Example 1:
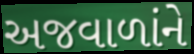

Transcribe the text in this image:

અજવાળાંને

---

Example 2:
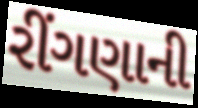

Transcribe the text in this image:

રીંગણાની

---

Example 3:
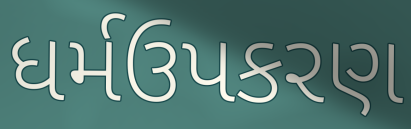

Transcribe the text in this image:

ધર્મઉપકરણ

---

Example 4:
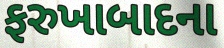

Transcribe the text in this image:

ફરુખાબાદના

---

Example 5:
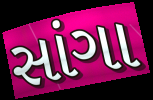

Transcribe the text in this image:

સાંગા